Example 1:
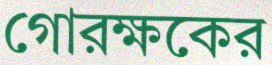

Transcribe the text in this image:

গোরক্ষকের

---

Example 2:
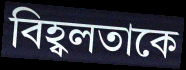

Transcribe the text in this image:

বিহ্বলতাকে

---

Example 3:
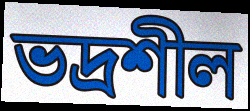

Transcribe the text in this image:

ভদ্রশীল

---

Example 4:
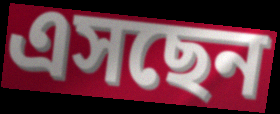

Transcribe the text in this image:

এসছেন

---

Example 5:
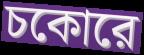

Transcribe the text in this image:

চকোরে